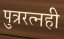
पुत्ररत्नही